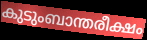
കുടുംബാന്തരീക്ഷം